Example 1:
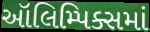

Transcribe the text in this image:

ઑલિમ્પિક્સમાં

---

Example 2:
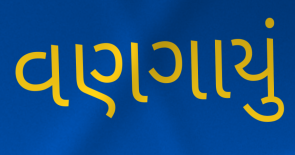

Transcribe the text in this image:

વણગાયું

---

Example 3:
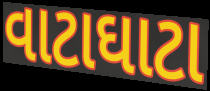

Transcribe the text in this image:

વાટાઘાટા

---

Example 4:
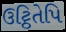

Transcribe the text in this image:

ઉટ્ઠિતેપિ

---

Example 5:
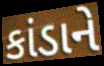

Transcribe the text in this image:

કાંડાને